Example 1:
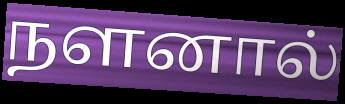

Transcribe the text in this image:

நளனால்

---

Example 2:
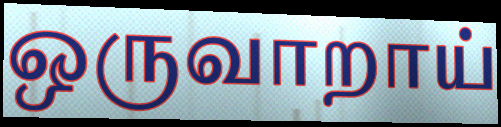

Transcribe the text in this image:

ஒருவாறாய்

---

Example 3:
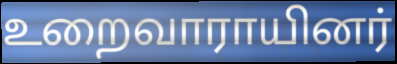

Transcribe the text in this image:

உறைவாராயினர்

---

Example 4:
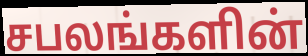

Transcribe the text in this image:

சபலங்களின்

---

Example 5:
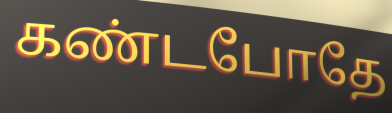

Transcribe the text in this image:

கண்டபோதே